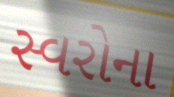
સ્વરોના